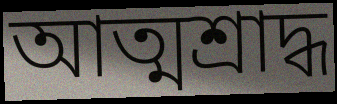
আত্মশ্রাদ্ধ